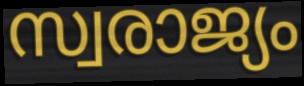
സ്വരാജ്യം